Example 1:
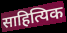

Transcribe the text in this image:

साहित्यिक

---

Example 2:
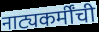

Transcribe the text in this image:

नाट्यकर्मींची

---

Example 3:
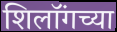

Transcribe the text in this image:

शिलॉंगच्या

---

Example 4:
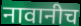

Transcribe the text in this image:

नावानीच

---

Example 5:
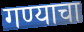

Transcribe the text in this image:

गण्याचा